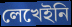
লেখেইনি